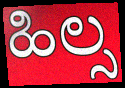
ಹಿಲ್ಸ